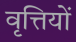
वृत्तियों